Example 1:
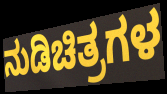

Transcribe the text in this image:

ನುಡಿಚಿತ್ರಗಳ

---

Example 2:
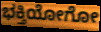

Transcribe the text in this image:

ಭಕ್ತಿಯೋಗೋ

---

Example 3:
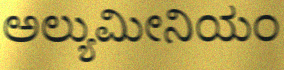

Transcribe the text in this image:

ಅಲ್ಯುಮೀನಿಯಂ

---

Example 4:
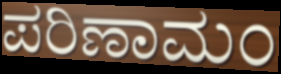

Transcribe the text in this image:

ಪರಿಣಾಮಂ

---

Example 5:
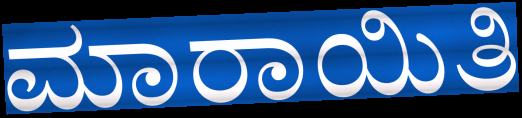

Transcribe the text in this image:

ಮಾರಾಯಿತಿ